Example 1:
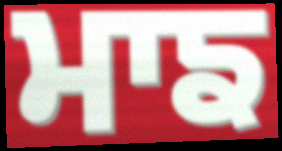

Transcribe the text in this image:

ਮਾਙ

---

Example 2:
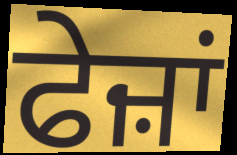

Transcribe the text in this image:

ਫੇਜ਼ਾਂ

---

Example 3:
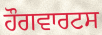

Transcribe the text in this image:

ਹੌਗਵਾਰਟਸ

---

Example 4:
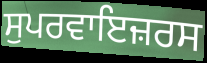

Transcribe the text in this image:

ਸੁਪਰਵਾਇਜ਼ਰਸ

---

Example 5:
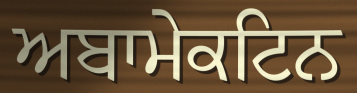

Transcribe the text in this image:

ਅਬਾਮੇਕਟਿਨ